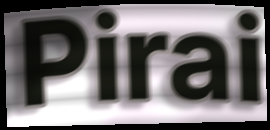
Pirai